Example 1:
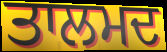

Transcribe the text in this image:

ਤਾਲਮਦ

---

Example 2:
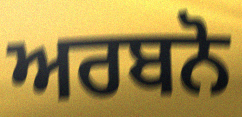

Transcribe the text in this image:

ਅਰਬਨੋ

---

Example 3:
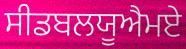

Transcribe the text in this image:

ਸੀਡਬਲਯੂਐਮਏ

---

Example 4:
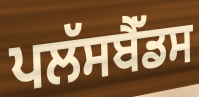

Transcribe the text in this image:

ਪਲੱਸਬੈੱਡਸ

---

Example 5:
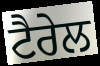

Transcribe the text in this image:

ਟੈਰੇਲ